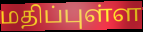
மதிப்புள்ள